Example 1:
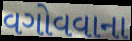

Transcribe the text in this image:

વગોવવાના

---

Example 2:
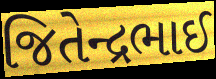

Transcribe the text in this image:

જિતેન્દ્રભાઈ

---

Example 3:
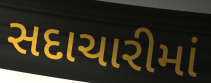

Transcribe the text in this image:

સદાચારીમાં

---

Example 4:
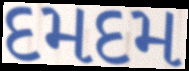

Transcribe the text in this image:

દમદમ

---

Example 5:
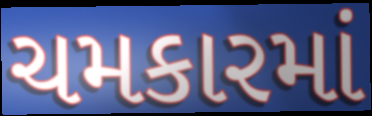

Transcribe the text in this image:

ચમકારમાં